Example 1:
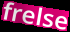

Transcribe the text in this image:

frelse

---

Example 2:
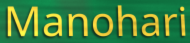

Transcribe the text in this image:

Manohari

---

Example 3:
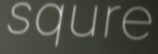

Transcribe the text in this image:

squre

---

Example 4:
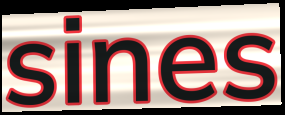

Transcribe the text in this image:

sines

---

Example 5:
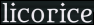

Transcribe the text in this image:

licorice